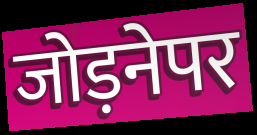
जोड़नेपर